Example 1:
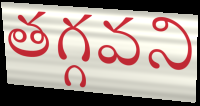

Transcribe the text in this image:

తగ్గవని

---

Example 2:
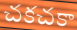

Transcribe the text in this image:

చకచకా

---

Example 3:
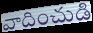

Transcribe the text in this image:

వాదించుడి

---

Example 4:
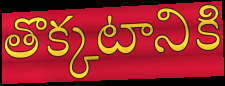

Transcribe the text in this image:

తొక్కటానికి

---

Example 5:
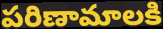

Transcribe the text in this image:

పరిణామాలకి